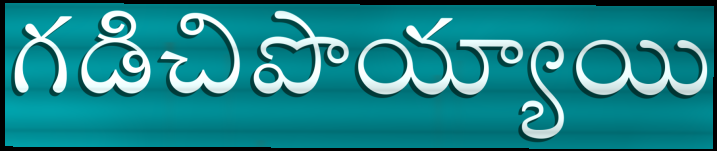
గడిచిపొయ్యాయి